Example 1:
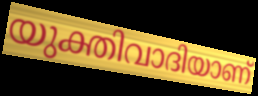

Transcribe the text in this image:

യുക്തിവാദിയാണ്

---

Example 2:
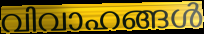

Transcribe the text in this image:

വിവാഹങ്ങൾ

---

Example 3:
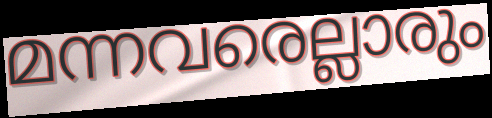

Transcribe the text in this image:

മന്നവരെല്ലാരും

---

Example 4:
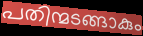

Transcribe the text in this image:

പതിന്മടങ്ങാകും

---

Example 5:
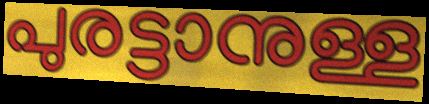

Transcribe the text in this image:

പുരട്ടാനുള്ള